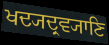
ਖਦ੍ਯਦ੍ਰਵ੍ਯਾਣਿ